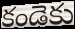
కండెకు